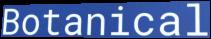
Botanical